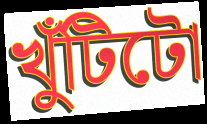
খুঁটিটো